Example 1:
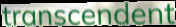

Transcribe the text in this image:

transcendent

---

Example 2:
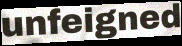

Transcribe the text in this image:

unfeigned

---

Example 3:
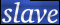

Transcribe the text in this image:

slave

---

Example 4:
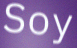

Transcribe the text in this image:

Soy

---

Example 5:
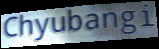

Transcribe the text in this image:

Chyubangi